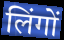
लिंगों